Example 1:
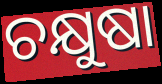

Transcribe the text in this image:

ଚକ୍ଷୁଷା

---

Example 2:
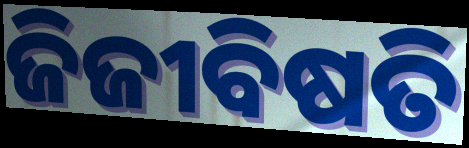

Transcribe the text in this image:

ଜିଜୀବିଷତି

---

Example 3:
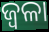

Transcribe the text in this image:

ଜ୍ଵଳା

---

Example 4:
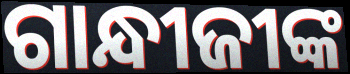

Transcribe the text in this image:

ଗାନ୍ଧୀଜୀଙ୍କ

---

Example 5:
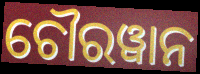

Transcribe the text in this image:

ଚୌରୱାନ